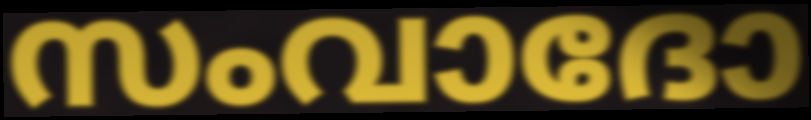
സംവാദോ